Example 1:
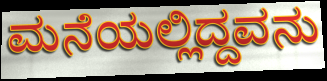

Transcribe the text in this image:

ಮನೆಯಲ್ಲಿದ್ದವನು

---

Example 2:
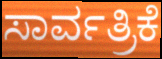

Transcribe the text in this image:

ಸಾರ್ವತ್ರಿಕೆ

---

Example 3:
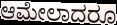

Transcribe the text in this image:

ಆಮೇಲಾದರೂ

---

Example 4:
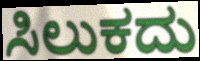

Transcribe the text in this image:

ಸಿಲುಕದು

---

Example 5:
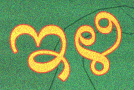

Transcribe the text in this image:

ಇಳಿ